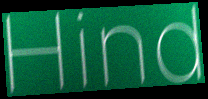
Hind